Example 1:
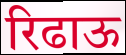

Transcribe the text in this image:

रिढाऊ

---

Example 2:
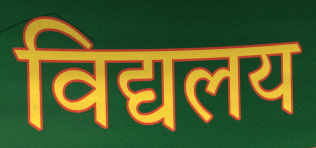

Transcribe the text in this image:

विद्यलय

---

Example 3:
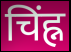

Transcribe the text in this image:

चिंह्न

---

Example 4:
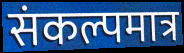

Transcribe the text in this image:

संकल्पमात्र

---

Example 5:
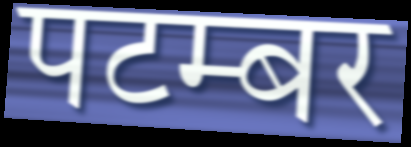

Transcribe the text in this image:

पटम्बर